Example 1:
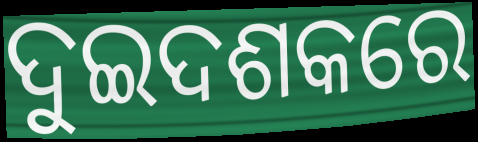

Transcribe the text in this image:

ଦୁଇଦଶକରେ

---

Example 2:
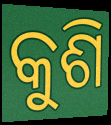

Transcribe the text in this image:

କୁଶି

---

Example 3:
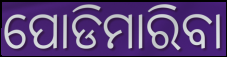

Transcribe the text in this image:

ପୋଡିମାରିବା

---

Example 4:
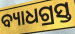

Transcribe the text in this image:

ବ୍ୟାଧଗ୍ରସ୍ତ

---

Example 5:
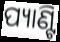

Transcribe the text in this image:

ପ୍ୟାଣ୍ଟି